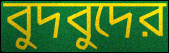
বুদবুদের